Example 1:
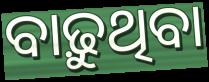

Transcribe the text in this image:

ବାଢ଼ୁଥିବା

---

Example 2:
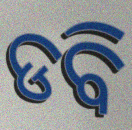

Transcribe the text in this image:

ଡବି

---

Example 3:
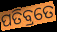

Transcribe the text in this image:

ପତିବ୍ରତେ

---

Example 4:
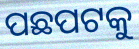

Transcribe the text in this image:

ପଛପଟକୁ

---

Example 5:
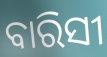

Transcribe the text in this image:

ବାରିସୀ